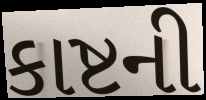
કાષ્ટની